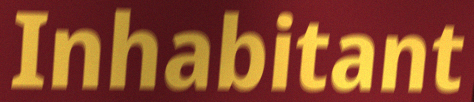
Inhabitant